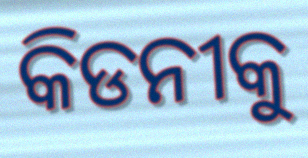
କିଡନୀକୁ